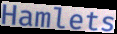
Hamlets